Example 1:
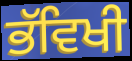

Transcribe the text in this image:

ਭੱਵਿਖੀ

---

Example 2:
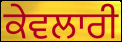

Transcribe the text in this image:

ਕੇਵਲਾਰੀ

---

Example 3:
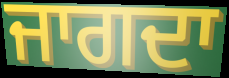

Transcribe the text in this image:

ਜਾਗਦਾ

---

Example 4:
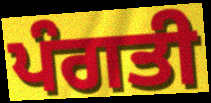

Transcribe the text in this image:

ਪੰਗਤੀ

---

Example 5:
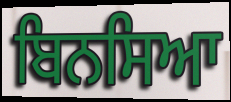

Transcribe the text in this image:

ਬਿਨਸਿਆ